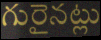
గురైనట్లు